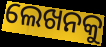
ଲେଖନକୁ